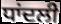
ਧਾਂਦਲੀ